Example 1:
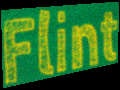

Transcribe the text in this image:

Flint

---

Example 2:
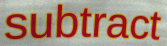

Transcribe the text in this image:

subtract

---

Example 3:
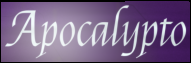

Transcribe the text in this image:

Apocalypto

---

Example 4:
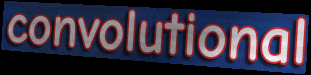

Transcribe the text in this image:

convolutional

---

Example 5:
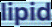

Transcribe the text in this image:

lipid